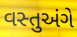
વસ્તુઅંગે